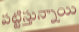
పట్టిస్తున్నాయి